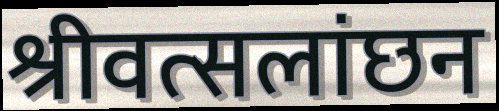
श्रीवत्सलांछन